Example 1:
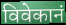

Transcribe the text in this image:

विवेकानं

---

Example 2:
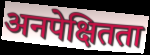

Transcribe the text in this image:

अनपेक्षितता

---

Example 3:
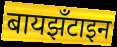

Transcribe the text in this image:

बायझँटाइन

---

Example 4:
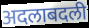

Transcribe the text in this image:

अदलाबदली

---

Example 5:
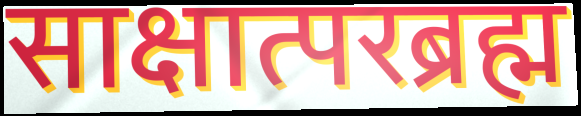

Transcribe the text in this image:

साक्षात्परब्रह्म